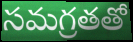
సమగ్రతతో